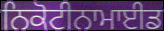
ਨਿਕੋਟੀਨਾਮਾਈਡ